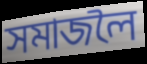
সমাজলৈ